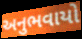
અનુભવાયો